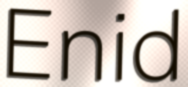
Enid